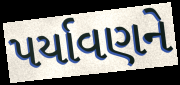
પર્યાવણને